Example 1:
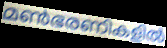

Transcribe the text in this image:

മൺഭരണികളിൽ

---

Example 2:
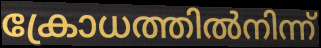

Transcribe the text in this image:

ക്രോധത്തിൽനിന്ന്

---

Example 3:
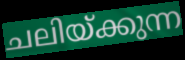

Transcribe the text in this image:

ചലിയ്ക്കുന്ന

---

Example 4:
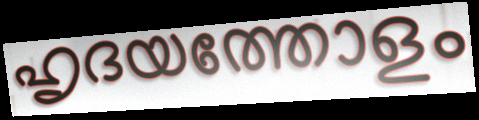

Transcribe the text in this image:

ഹൃദയത്തോളം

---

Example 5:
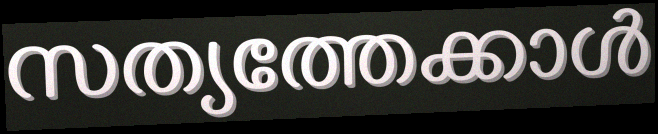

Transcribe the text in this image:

സത്യത്തേക്കാൾ